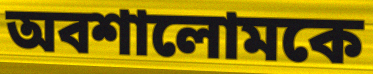
অবশালোমকে